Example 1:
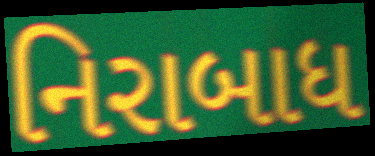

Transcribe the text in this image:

નિરાબાધ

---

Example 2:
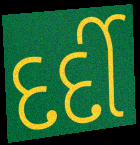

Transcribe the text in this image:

દર્દી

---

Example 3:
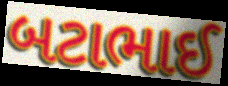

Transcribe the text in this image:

બટાભાઈ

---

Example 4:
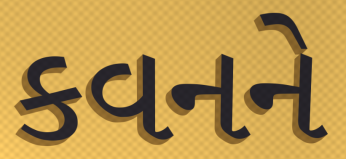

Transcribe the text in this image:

કવનને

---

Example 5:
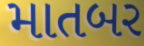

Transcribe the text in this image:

માતબર